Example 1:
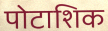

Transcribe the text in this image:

पोटाशिक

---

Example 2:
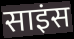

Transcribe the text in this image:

साइंस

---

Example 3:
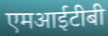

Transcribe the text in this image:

एमआईटीबी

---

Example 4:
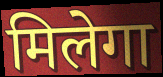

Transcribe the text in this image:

मिलेगा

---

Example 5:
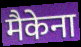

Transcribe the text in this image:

मैकेना